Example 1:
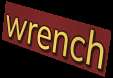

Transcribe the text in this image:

wrench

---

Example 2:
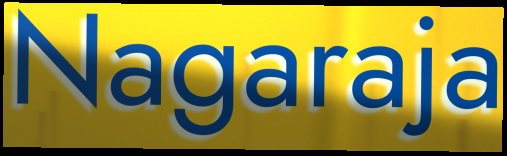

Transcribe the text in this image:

Nagaraja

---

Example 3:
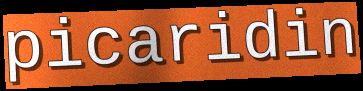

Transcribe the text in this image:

picaridin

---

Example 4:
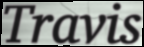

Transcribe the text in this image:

Travis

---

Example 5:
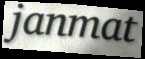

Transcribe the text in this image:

janmat